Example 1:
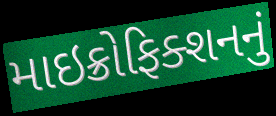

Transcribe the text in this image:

માઇક્રોફિક્શનનું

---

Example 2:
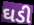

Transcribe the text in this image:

ઘડી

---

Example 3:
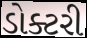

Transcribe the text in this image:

ડોક્ટરી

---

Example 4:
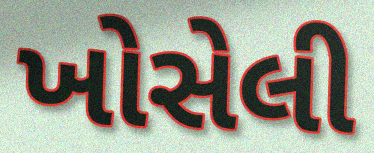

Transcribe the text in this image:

ખોસેલી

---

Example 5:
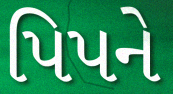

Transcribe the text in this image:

પિપને